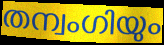
തന്വംഗിയും